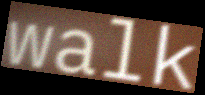
walk